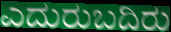
ಎದುರುಬದಿರು